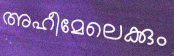
അഹീമേലെക്കും